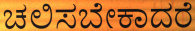
ಚಲಿಸಬೇಕಾದರೆ